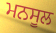
ਮਨਸੂਲ